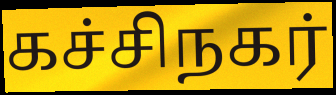
கச்சிநகர்